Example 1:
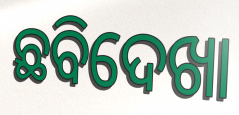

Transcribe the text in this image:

ଛବିଦେଖା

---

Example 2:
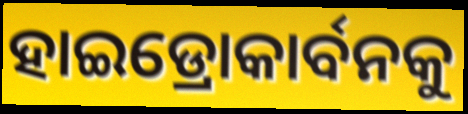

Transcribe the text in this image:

ହାଇଡ୍ରୋକାର୍ବନକୁ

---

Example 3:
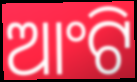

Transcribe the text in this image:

ଆଂଟି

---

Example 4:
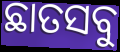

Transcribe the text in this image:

ଛାତସବୁ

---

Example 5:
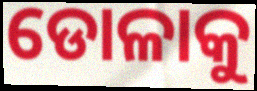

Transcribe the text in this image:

ଡୋଳାକୁ